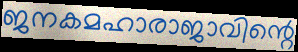
ജനകമഹാരാജാവിന്റെ